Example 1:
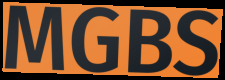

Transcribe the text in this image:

MGBS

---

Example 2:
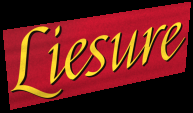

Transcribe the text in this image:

Liesure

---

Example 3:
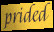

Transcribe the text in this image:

prided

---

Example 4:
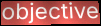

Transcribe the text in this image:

objective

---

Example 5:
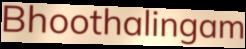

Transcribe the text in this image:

Bhoothalingam